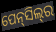
ପେନ୍‍ସିଲ୍‍ର